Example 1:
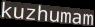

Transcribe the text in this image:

kuzhumam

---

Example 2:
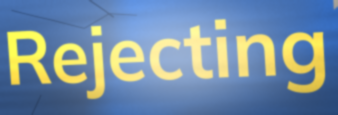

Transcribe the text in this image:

Rejecting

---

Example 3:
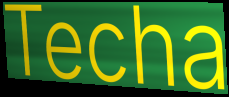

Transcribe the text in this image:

Techa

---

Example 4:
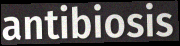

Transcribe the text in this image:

antibiosis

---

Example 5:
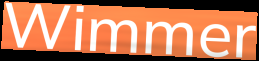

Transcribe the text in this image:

Wimmer